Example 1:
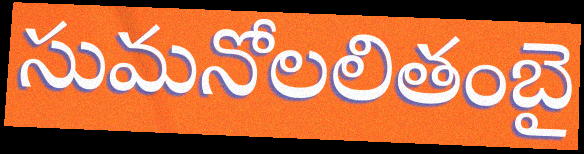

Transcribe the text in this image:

సుమనోలలితంబై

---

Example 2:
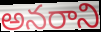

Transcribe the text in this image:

అనరాని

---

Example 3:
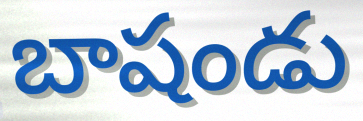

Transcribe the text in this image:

బాషండు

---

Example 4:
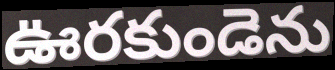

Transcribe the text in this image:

ఊరకుండెను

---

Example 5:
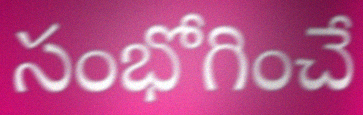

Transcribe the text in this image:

సంభోగించే